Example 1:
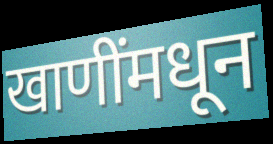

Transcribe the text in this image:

खाणींमधून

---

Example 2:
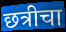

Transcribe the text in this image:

छत्रीचा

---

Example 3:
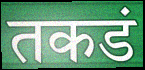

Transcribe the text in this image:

तकडं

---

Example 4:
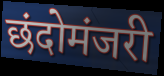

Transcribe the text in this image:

छंदोमंजरी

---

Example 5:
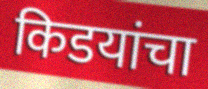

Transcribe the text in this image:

किडयांचा